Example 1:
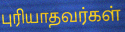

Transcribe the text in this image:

புரியாதவர்கள்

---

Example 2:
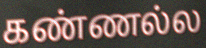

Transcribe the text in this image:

கண்ணல்ல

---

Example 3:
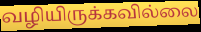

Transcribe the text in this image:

வழியிருக்கவில்லை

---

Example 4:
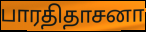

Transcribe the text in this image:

பாரதிதாசனா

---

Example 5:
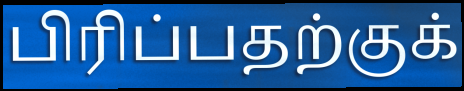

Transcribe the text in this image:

பிரிப்பதற்குக்